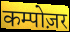
कम्पोज़र